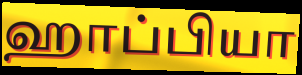
ஹாப்பியா